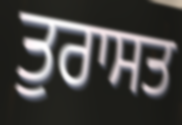
ਤੁਰਾਸਤ